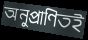
অনুপ্রাণিতই